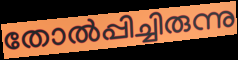
തോൽപ്പിച്ചിരുന്നു